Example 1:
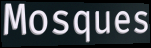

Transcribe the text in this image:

Mosques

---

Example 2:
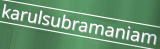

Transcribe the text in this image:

karulsubramaniam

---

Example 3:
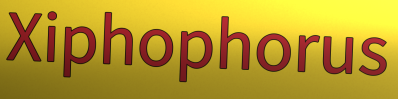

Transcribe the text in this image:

Xiphophorus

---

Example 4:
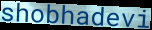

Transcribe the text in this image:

shobhadevi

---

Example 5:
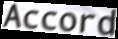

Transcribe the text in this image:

Accord